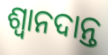
ଶ୍ଵାନଦାନ୍ତ